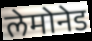
लेमोनेड